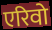
एरिवो